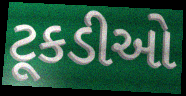
ટૂકડીઓ